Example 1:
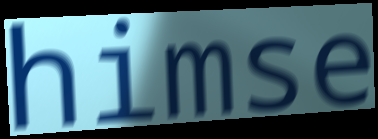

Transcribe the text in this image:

himse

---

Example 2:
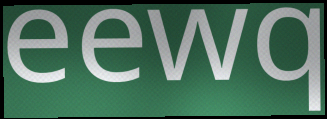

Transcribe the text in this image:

eewq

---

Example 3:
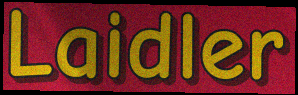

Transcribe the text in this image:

Laidler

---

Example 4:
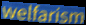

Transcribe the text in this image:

welfarism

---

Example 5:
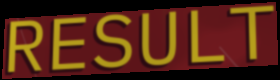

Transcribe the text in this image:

RESULT